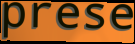
prese